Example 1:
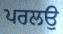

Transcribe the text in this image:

ਪਰਲਉ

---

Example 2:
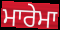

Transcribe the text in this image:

ਮਾਰੇਮਾ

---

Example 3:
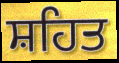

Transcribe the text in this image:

ਸ਼ਹਿਤ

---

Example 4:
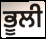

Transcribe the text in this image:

ਭੂਲੀ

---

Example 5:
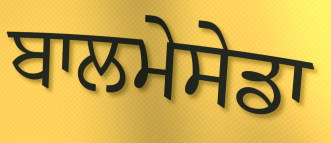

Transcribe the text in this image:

ਬਾਲਮੇਸੇਡਾ